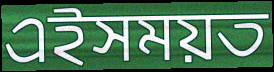
এইসময়ত